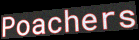
Poachers